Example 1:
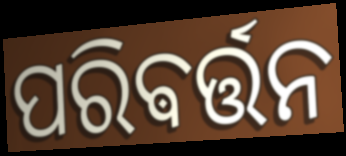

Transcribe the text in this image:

ପରିଵର୍ତ୍ତନ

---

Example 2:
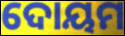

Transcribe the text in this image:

ଦୋୟମ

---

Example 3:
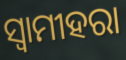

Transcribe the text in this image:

ସ୍ଵାମୀହରା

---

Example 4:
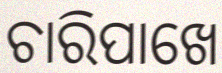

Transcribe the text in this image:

ଚାରିପାଖେ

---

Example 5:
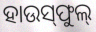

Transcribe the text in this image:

ହାଉସ୍‌ଫୁଲ୍